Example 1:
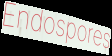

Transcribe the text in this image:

Endospores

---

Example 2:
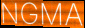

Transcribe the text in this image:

NGMA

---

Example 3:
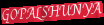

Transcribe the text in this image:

GOPALSHUNYA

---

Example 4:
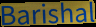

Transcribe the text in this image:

Barishal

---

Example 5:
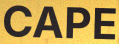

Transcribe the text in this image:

CAPE